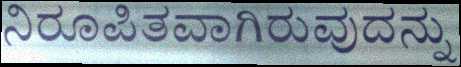
ನಿರೂಪಿತವಾಗಿರುವುದನ್ನು